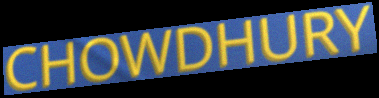
CHOWDHURY